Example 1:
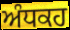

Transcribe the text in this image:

ਅੰਧਕਹ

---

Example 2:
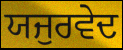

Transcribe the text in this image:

ਯਜੁਰਵੇਦ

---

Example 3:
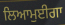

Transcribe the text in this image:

ਲਿਆਮੁਈਗਾ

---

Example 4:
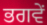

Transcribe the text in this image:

ਭਗਵੇਂ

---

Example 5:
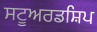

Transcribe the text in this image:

ਸਟੂਅਰਡਸ਼ਿਪ